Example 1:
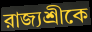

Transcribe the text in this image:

রাজ্যশ্রীকে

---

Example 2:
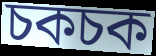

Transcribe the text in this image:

চকচক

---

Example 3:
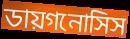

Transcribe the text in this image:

ডায়গনোসিস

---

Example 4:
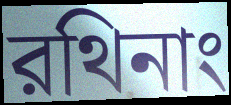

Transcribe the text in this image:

রথিনাং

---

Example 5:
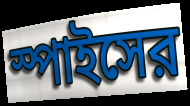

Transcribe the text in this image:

স্পাইসের